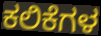
ಕಲಿಕೆಗಳ